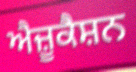
ਐਜ਼ੂਕੈਸ਼ਨ